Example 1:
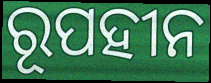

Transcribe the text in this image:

ରୂପହୀନ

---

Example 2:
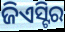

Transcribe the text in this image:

ଜିଏସ୍ଟିର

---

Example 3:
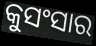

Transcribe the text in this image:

କୁସଂସାର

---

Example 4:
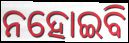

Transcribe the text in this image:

ନହୋଇବି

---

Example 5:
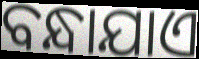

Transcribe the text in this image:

ବନ୍ଧାଯାଏ